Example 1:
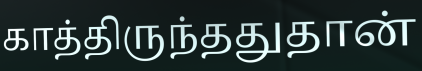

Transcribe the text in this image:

காத்திருந்ததுதான்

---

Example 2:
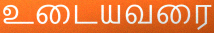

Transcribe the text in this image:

உடையவரை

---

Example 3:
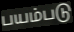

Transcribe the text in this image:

பயம்படு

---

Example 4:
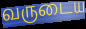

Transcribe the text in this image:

வருடைய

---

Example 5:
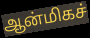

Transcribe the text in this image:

ஆன்மிகச்